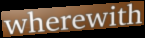
wherewith